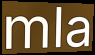
mla